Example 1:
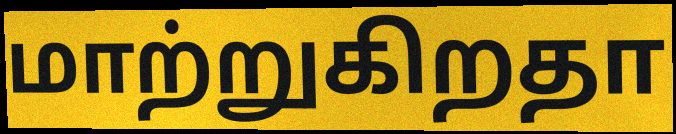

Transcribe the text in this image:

மாற்றுகிறதா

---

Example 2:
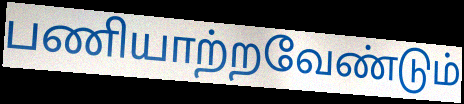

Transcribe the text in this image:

பணியாற்றவேண்டும்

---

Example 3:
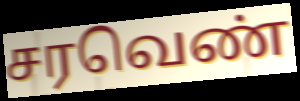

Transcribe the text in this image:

சரவெண்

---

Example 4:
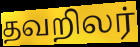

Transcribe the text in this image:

தவறிலர்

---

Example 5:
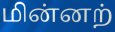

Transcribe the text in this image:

மின்னற்